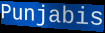
Punjabis